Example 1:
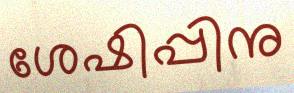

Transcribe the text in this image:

ശേഷിപ്പിനു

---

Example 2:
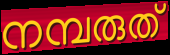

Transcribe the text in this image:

നമ്പരുത്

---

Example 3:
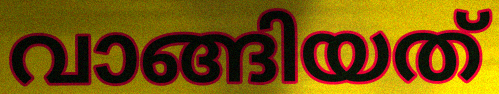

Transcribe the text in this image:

വാങ്ങിയത്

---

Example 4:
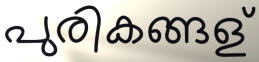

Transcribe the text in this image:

പുരികങ്ങള്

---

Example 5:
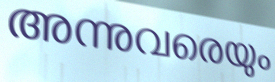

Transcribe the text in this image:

അന്നുവരെയും